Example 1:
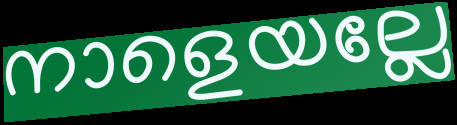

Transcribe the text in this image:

നാളെയല്ലേ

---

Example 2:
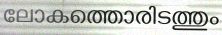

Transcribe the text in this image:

ലോകത്തൊരിടത്തും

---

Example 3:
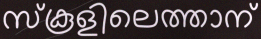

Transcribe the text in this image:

സ്കൂളിലെത്താന്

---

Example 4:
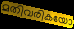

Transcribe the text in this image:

മതിവരികയോ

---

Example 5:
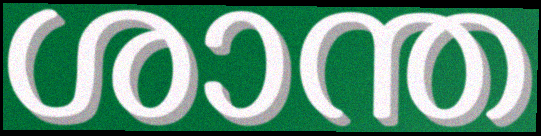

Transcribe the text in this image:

ശാന്ത